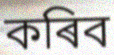
কৰিব